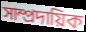
সাম্প্রদায়িক